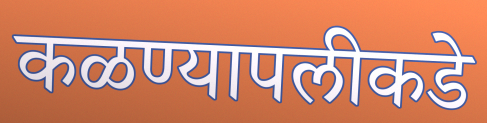
कळण्यापलीकडे